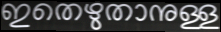
ഇതെഴുതാനുള്ള